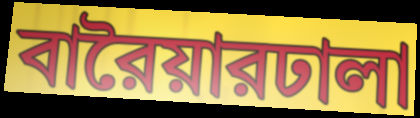
বারৈয়ারঢালা